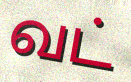
வட்